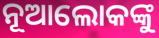
ନୂଆଲୋକଙ୍କୁ